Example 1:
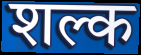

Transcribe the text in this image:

शल्क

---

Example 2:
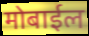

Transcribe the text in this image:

मोबाईल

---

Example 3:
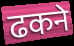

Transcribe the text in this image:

ढकने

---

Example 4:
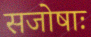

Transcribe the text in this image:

सजोषाः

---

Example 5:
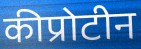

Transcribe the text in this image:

कीप्रोटीन